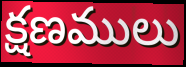
క్షణములు